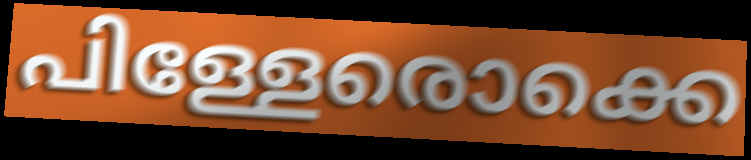
പിള്ളേരൊക്കെ